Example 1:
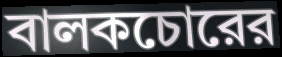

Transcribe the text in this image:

বালকচোরের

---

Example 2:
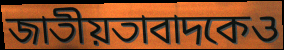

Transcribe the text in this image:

জাতীয়তাবাদকেও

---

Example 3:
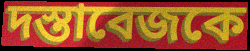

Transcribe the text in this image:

দস্তাবেজকে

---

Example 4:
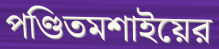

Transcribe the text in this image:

পণ্ডিতমশাইয়ের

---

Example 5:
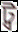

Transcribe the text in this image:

ট্ব